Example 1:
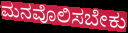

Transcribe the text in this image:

ಮನವೊಲಿಸಬೇಕು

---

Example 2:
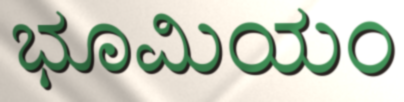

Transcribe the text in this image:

ಭೂಮಿಯಂ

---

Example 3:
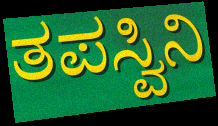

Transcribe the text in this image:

ತಪಸ್ವಿನಿ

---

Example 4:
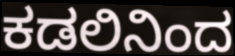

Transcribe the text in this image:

ಕಡಲಿನಿಂದ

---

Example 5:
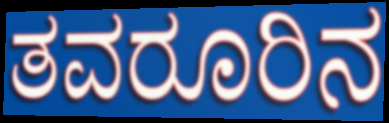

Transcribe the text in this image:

ತವರೂರಿನ